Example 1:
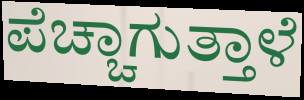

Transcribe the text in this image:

ಪೆಚ್ಚಾಗುತ್ತಾಳೆ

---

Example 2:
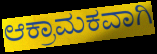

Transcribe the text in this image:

ಆಕ್ರಾಮಕವಾಗಿ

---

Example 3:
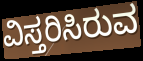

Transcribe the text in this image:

ವಿಸ್ತರಿಸಿರುವ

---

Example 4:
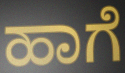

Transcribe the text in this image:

ಹಾಗೆ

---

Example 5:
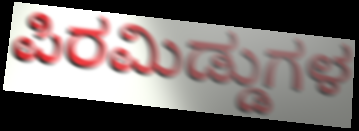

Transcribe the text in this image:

ಪಿರಮಿಡ್ಡುಗಳ